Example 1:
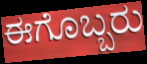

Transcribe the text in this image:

ಈಗೊಬ್ಬರು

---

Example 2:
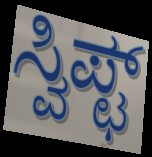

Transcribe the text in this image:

ಸ್ವಿಪ್ಟ್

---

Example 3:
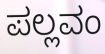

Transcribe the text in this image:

ಪಲ್ಲವಂ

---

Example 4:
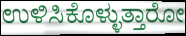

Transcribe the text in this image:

ಉಳಿಸಿಕೊಳ್ಳುತ್ತಾರೋ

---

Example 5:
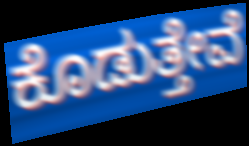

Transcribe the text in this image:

ಕೊಡುತ್ತೇವೆ